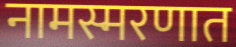
नामस्मरणात